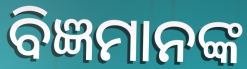
ବିଜ୍ଞମାନଙ୍କ